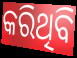
କରିଥିବି